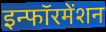
इन्फॉरमेंशन